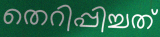
തെറിപ്പിച്ചത്